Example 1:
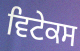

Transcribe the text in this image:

ਵਿਟੇਕਸ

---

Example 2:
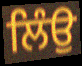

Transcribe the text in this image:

ਲਿੰਉ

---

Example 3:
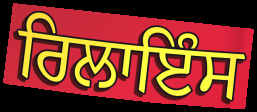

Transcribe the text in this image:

ਰਿਲਾਇੰਸ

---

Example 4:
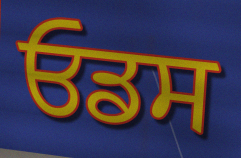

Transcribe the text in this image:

ਓਡਸ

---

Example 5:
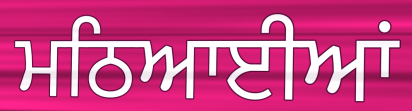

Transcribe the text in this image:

ਮਠਿਆਈਆਂ